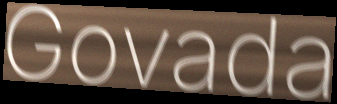
Govada